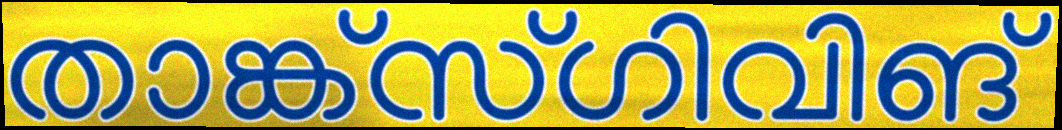
താങ്ക്സ്ഗിവിങ്